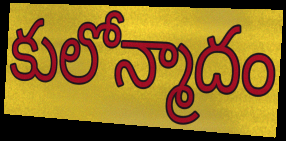
కులోన్మాదం